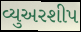
વ્યુઅરશીપ